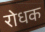
रोधक